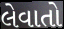
લેવાતો